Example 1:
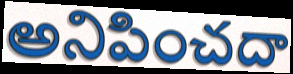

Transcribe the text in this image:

అనిపించదా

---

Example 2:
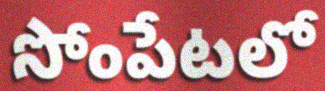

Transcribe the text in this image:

సోంపేటలో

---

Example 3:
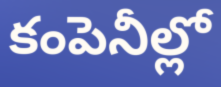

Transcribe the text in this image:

కంపెనీల్లో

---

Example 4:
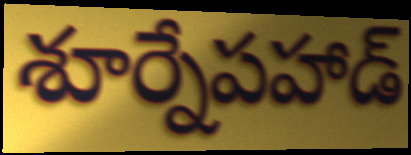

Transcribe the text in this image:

శూర్నేపహాడ్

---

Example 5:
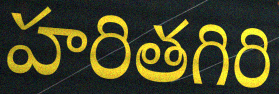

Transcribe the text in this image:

హరితగిరి